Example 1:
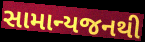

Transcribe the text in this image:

સામાન્યજનથી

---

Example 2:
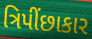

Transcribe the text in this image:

ત્રિપીંછાકાર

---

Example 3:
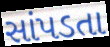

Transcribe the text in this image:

સાંપડતા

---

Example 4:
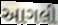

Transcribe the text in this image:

આગલી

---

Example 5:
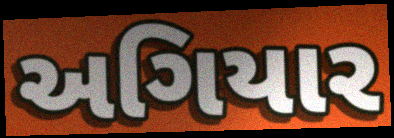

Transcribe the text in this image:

અગિયાર